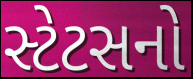
સ્ટેટસનો